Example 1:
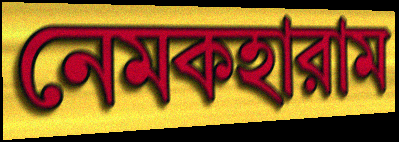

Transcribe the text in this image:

নেমকহারাম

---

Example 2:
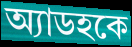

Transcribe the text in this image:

অ্যাডহকে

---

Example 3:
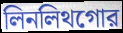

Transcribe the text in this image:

লিনলিথগোর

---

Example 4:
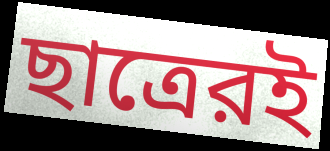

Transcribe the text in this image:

ছাত্রেরই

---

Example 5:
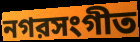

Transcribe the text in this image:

নগরসংগীত